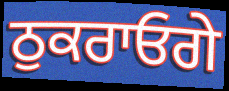
ਠੁਕਰਾਓਗੇ